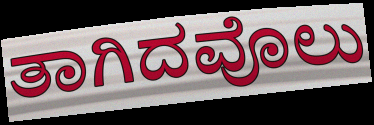
ತಾಗಿದವೊಲು